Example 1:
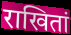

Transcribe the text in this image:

राखितां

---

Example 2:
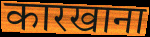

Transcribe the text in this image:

कारखाना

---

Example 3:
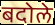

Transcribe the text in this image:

बदोले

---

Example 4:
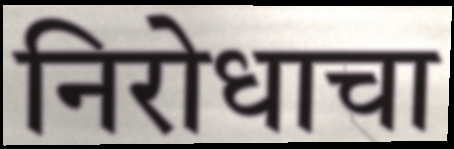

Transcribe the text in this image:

निरोधाचा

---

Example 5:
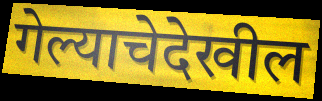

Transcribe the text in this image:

गेल्याचेदेखील